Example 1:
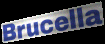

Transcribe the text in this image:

Brucella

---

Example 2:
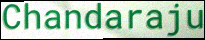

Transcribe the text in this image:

Chandaraju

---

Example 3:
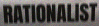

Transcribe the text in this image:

RATIONALIST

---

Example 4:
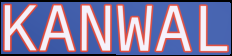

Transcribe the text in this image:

KANWAL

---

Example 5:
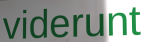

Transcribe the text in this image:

viderunt